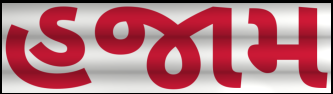
હજામ